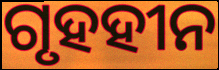
ଗୃହହୀନ